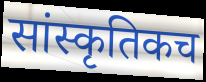
सांस्कृतिकच